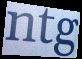
ntg